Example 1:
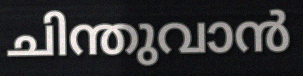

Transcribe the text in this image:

ചിന്തുവാൻ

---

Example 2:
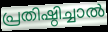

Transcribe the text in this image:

പ്രതിഷ്ഠിച്ചാൽ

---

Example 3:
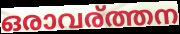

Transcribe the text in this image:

ഒരാവര്ത്തന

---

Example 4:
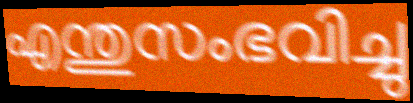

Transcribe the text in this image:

എന്തുസംഭവിച്ചു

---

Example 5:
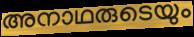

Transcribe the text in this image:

അനാഥരുടെയും